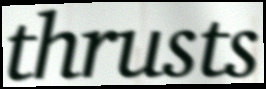
thrusts